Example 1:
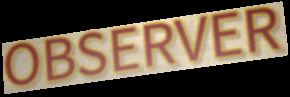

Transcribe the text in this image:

OBSERVER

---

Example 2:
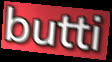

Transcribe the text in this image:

butti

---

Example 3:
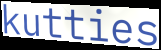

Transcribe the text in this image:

kutties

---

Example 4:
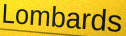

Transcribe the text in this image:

Lombards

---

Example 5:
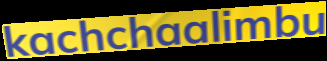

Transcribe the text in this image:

kachchaalimbu